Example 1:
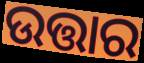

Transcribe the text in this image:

ଉତ୍ତାର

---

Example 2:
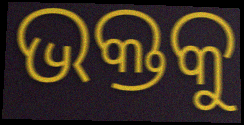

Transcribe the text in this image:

ଭକ୍ତକୁ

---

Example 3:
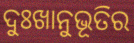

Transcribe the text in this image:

ଦୁଃଖାନୁଭୂତିର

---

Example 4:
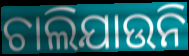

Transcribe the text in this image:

ଚାଲିଯାଉନି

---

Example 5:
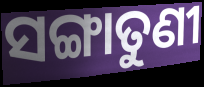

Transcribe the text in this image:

ସଙ୍ଗାତୁଣୀ